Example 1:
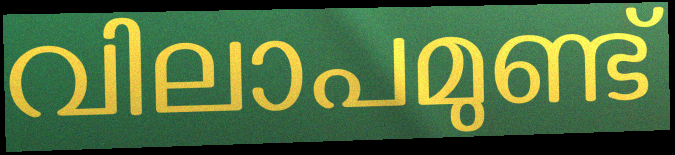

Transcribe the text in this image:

വിലാപമുണ്ട്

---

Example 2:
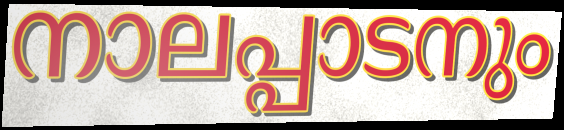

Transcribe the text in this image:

നാലപ്പാടനും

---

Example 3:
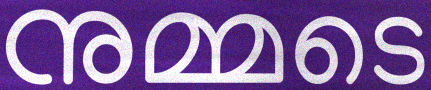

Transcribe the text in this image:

നുമ്മടെ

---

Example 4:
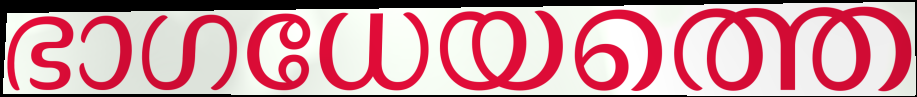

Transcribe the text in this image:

ഭാഗധേയത്തെ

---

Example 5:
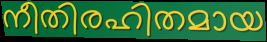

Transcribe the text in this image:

നീതിരഹിതമായ